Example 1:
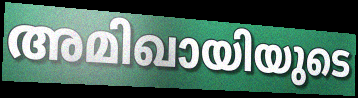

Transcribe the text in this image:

അമിഖായിയുടെ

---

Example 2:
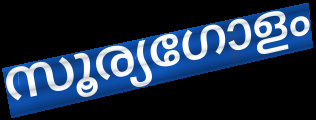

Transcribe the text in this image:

സൂര്യഗോളം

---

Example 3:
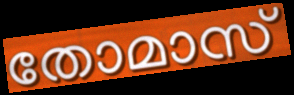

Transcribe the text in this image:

തോമാസ്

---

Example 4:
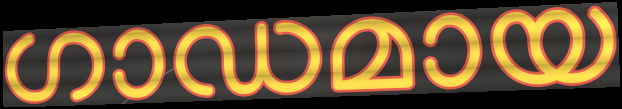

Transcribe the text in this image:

ഗാഡമായ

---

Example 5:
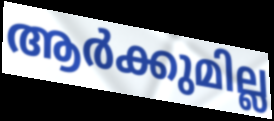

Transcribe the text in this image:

ആർക്കുമില്ല